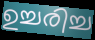
ഉച്ചരിച്ച